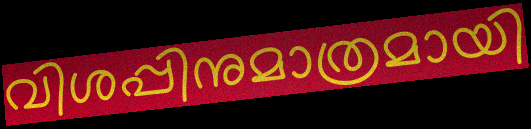
വിശപ്പിനുമാത്രമായി